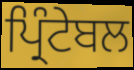
ਪ੍ਰਿੰਟੇਬਲ